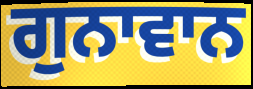
ਗੁਨਾਵਾਨ